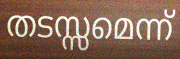
തടസ്സമെന്ന്